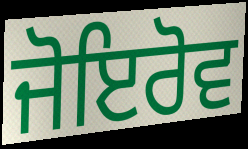
ਜੋਇਰੋਵ